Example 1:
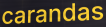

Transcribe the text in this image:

carandas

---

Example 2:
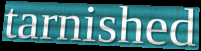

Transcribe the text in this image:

tarnished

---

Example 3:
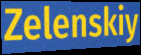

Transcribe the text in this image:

Zelenskiy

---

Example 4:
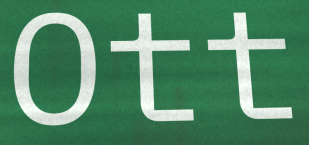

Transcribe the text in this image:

Ott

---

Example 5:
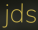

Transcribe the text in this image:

jds